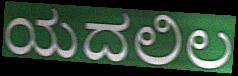
ಯದಲಿಲ